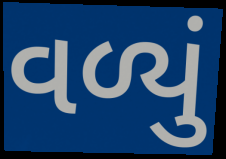
વળ્યું